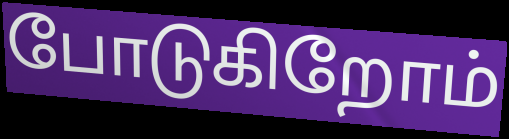
போடுகிறோம்